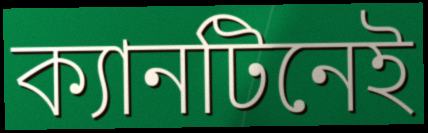
ক্যানটিনেই